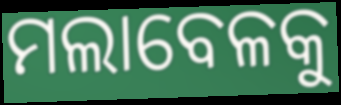
ମଲାବେଳକୁ